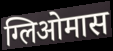
ग्लिओमास